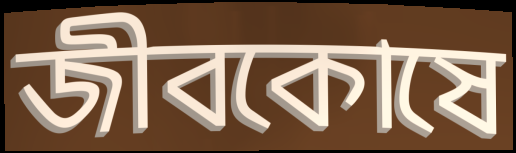
জীবকোষে